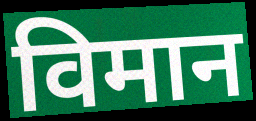
विमान